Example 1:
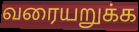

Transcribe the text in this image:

வரையறுக்க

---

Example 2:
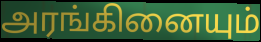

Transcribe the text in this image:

அரங்கினையும்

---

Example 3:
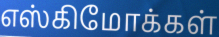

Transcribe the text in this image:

எஸ்கிமோக்கள்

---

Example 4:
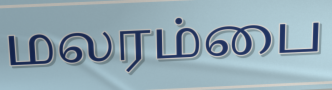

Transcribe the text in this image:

மலரம்பை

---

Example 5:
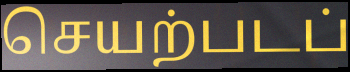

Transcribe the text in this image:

செயற்படப்